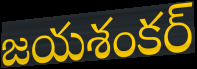
జయశంకర్